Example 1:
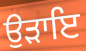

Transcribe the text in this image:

ਉੜਾਇ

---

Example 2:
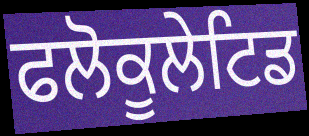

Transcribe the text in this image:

ਫਲੋਕੂਲੇਟਿਡ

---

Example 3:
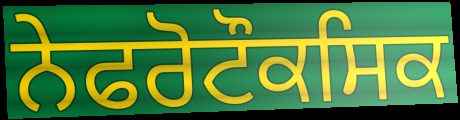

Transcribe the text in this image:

ਨੇਫਰੋਟੌਕਸਿਕ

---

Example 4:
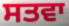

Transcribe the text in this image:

ਸਤਵਾ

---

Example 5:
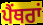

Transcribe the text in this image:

ਪੈਂਥਰਾਂ